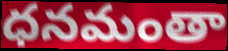
ధనమంతా